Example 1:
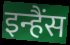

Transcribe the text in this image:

इन्हैंस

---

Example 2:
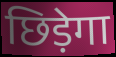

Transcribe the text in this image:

छिड़ेगा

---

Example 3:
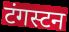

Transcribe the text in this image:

टंगस्टन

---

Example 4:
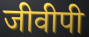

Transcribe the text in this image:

जीवीपी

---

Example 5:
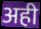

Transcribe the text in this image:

अही